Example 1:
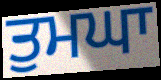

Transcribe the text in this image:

ਤੁਮਘਾ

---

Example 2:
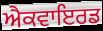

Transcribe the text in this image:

ਐਕਵਾਇਰਡ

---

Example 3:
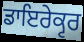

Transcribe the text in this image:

ਡਾਇਰੇਕ੍ਟਰ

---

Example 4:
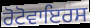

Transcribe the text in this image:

ਰੋਟੋਵਾਇਰਸ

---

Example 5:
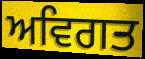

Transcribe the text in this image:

ਅਵਿਗਤ